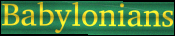
Babylonians